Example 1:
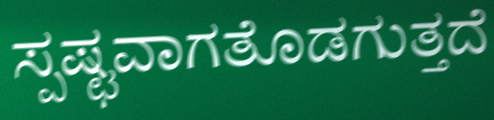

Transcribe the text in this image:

ಸ್ಪಷ್ಟವಾಗತೊಡಗುತ್ತದೆ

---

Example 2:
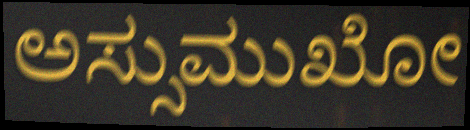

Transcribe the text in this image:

ಅಸ್ಸುಮುಖೋ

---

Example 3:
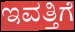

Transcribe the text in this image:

ಇವತ್ತಿಗೆ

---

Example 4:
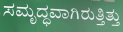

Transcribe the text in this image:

ಸಮೃದ್ಧವಾಗಿರುತ್ತಿತ್ತು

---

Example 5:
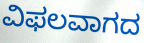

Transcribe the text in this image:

ವಿಫಲವಾಗದ